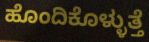
ಹೊಂದಿಕೊಳ್ಳುತ್ತೆ